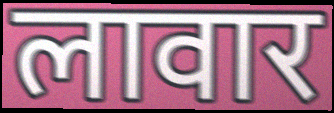
लावार